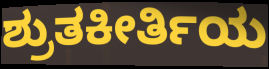
ಶ್ರುತಕೀರ್ತಿಯ